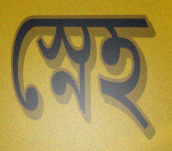
স্নেহ